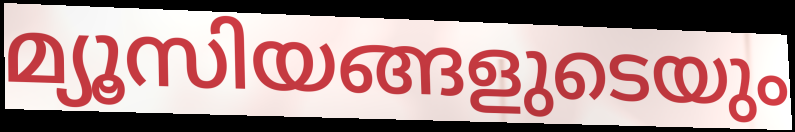
മ്യൂസിയങ്ങളുടെയും